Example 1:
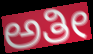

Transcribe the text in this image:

ಅತೀ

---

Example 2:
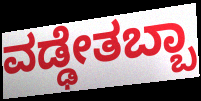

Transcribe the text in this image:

ವಡ್ಢೇತಬ್ಬಾ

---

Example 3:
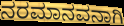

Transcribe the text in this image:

ನರಮಾನವನಾಗಿ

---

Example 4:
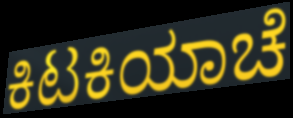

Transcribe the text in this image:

ಕಿಟಕಿಯಾಚೆ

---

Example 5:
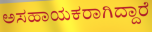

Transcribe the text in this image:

ಅಸಹಾಯಕರಾಗಿದ್ದಾರೆ